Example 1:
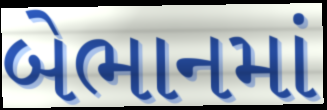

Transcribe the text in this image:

બેભાનમાં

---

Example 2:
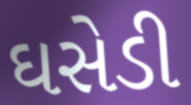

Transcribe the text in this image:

ઘસેડી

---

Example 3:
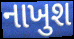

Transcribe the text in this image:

નાખુશ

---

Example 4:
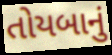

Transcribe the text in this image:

તોયબાનું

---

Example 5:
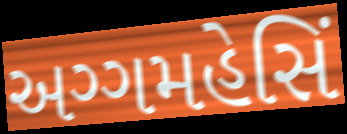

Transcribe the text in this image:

અગ્ગમહેસિં